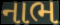
નાભ